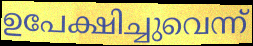
ഉപേക്ഷിച്ചുവെന്ന്